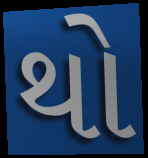
થો